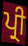
ਪ੍ਰੀ